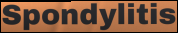
Spondylitis